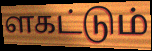
ளகட்டும்